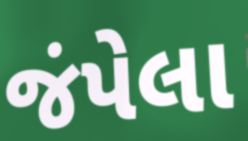
જંપેલા